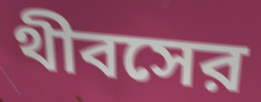
থীবসের